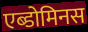
एब्डोमिनस